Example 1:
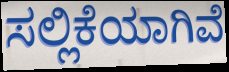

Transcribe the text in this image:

ಸಲ್ಲಿಕೆಯಾಗಿವೆ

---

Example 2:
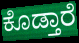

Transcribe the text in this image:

ಕೊಡ್ತಾರೆ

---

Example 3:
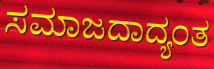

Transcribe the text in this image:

ಸಮಾಜದಾದ್ಯಂತ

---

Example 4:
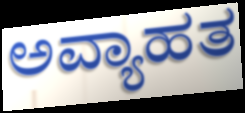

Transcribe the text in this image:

ಅವ್ಯಾಹತ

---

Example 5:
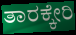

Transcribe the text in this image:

ತಾರಕ್ಕೇರಿ